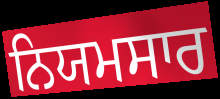
ਨਿਯਮਸਾਰ